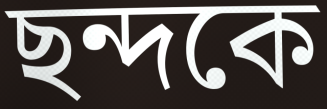
ছন্দকে